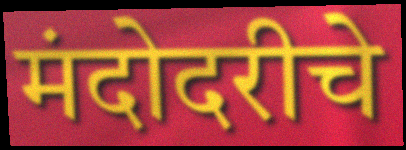
मंदोदरीचे